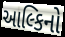
આલ્કિનો